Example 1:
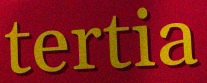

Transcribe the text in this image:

tertia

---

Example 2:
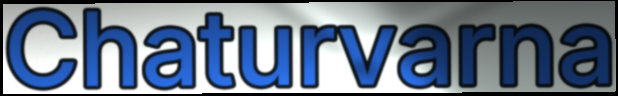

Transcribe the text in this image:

Chaturvarna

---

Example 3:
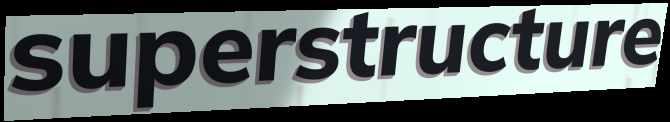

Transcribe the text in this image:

superstructure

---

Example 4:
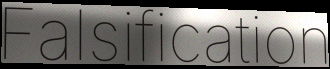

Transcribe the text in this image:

Falsification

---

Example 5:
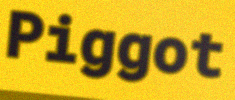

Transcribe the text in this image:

Piggot